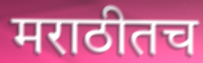
मराठीतच